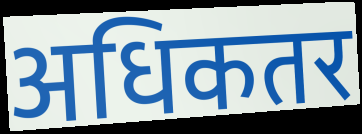
अधिकतर